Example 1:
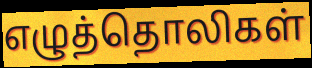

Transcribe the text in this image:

எழுத்தொலிகள்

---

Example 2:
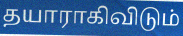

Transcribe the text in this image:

தயாராகிவிடும்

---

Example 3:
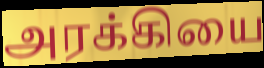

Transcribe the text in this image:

அரக்கியை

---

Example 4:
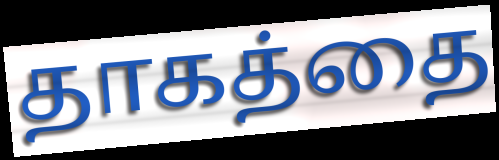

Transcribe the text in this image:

தாகத்தை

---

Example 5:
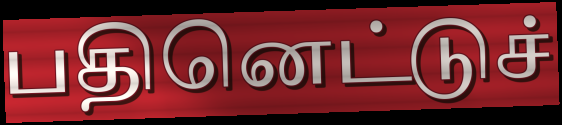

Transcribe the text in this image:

பதினெட்டுச்